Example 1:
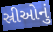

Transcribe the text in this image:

સ્રીઓનું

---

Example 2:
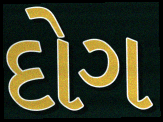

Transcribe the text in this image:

દોગ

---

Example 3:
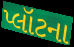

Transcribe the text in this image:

પ્લૉટના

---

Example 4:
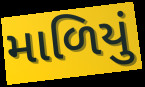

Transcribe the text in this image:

માળિયું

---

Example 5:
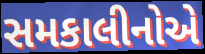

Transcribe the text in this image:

સમકાલીનોએ